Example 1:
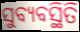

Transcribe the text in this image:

ସୁବ୍ୟବସ୍ଥିତି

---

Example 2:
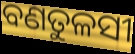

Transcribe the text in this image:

ବଣତୁଳସୀ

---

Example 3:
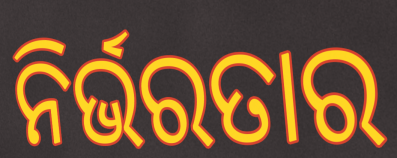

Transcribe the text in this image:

ନିର୍ଭରତାର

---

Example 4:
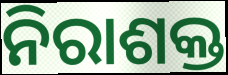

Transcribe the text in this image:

ନିରାଶକ୍ତ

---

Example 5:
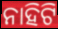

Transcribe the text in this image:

ନାହିଟି